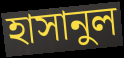
হাসানুল